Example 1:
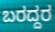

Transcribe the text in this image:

ಬರದ್ದರ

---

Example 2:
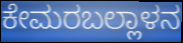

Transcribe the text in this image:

ಕೇಮರಬಲ್ಲಾಳನ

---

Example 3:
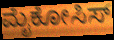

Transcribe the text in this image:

ಮೈಕೋಸಿಸ್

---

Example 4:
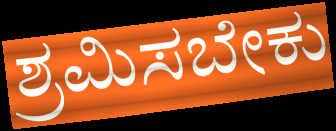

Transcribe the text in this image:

ಶ್ರಮಿಸಬೇಕು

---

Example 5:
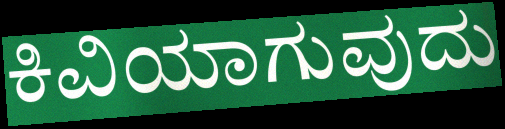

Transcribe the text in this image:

ಕಿವಿಯಾಗುವುದು